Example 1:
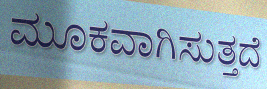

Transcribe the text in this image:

ಮೂಕವಾಗಿಸುತ್ತದೆ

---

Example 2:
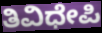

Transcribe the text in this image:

ತಿವಿಧೇಪಿ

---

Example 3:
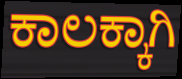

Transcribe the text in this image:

ಕಾಲಕ್ಕಾಗಿ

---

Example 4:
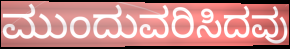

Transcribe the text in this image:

ಮುಂದುವರಿಸಿದವು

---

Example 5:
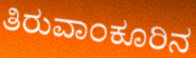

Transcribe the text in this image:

ತಿರುವಾಂಕೂರಿನ